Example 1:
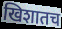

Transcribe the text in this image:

खिशातच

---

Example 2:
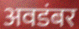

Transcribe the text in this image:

अवडंबर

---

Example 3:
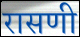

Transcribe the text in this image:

रासणी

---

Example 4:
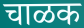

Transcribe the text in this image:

चाळक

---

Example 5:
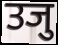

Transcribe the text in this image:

उजु